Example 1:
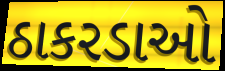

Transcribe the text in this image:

ઠાકરડાઓ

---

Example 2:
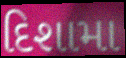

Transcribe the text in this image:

દિશામા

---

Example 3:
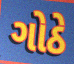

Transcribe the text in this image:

ગોઠે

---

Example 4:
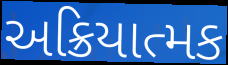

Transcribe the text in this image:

અક્રિયાત્મક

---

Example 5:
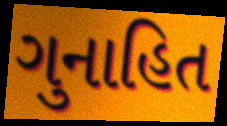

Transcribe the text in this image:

ગુનાહિત